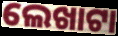
ଲେଖାଟା